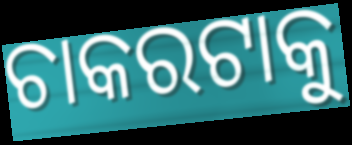
ଚାକରଟାକୁ